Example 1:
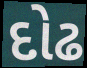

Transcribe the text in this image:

દોઢ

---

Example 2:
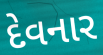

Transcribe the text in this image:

દેવનાર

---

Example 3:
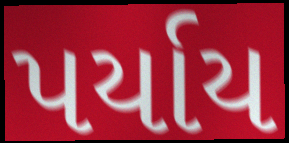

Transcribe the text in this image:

પર્યાય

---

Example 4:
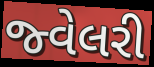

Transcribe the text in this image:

જ્વેલરી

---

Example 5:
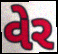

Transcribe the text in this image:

વેર